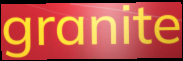
granite